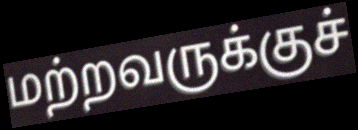
மற்றவருக்குச்